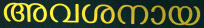
അവശനായ